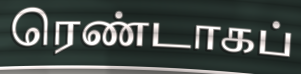
ரெண்டாகப்